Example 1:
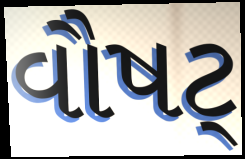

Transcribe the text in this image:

વૌષટ્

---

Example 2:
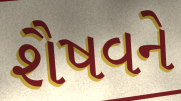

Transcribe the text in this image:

શૈષવને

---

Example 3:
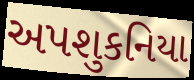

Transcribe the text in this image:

અપશુકનિયા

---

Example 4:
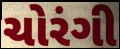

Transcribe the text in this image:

ચોરંગી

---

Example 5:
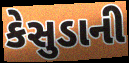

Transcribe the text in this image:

કેસુડાની